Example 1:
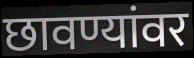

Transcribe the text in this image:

छावण्यांवर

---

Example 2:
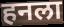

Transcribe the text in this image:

हनला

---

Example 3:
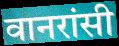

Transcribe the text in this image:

वानरांसी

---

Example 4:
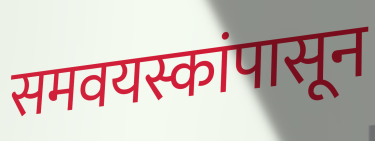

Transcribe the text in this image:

समवयस्कांपासून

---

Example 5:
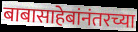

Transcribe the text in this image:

बाबासाहेबांनंतरच्या